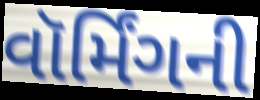
વૉર્મિંગની